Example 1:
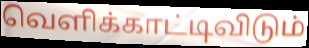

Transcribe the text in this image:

வெளிக்காட்டிவிடும்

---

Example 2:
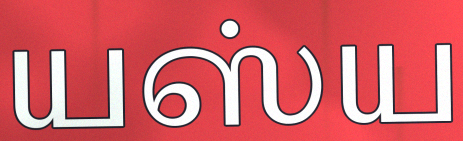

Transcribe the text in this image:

யஸ்ய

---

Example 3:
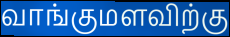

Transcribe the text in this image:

வாங்குமளவிற்கு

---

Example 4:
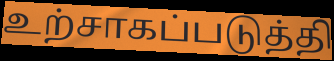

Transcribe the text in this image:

உற்சாகப்படுத்தி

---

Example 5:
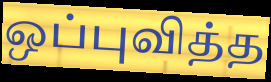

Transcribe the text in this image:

ஒப்புவித்த